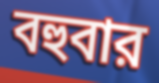
বহুবার